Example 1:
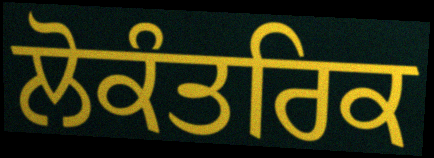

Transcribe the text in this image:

ਲੋਕੰਤਰਿਕ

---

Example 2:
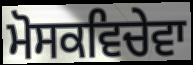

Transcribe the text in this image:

ਮੋਸਕਵਿਚੇਵਾ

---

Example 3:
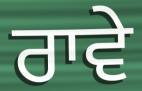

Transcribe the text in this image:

ਰਾਵੇ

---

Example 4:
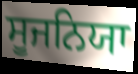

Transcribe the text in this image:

ਸੂਜਨਿਯਾ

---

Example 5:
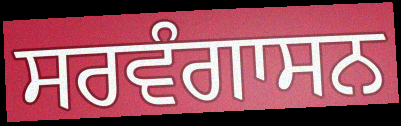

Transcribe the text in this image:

ਸਰਵੰਗਾਸਨ